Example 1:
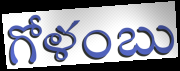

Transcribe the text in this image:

గోళంబు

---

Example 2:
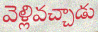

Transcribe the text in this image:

వెళ్లివచ్చాడు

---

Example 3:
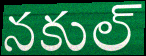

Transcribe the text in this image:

నకుల్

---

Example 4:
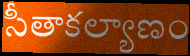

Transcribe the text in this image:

సీతాకల్యాణం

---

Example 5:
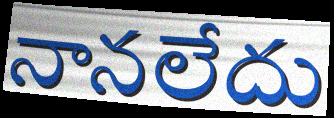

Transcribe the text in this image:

నానలేదు